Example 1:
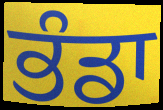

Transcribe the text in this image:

ਭੰਡਾ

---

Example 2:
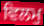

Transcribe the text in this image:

ਵਿਲਮੁ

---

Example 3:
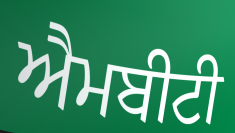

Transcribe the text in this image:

ਐਮਬੀਟੀ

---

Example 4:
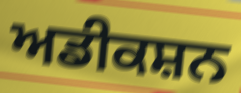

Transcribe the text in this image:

ਅਡੀਕਸ਼ਨ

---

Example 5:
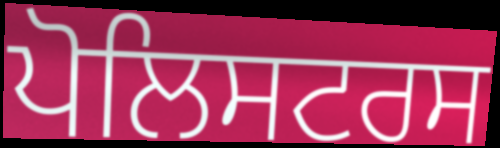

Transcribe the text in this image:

ਪੋਲਿਸਟਰਸ